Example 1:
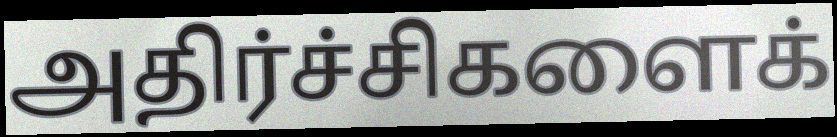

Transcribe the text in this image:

அதிர்ச்சிகளைக்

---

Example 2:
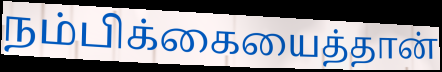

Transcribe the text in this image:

நம்பிக்கையைத்தான்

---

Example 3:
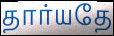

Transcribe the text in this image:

தார்யதே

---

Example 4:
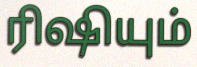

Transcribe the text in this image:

ரிஷியும்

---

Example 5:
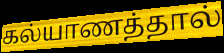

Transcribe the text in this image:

கல்யாணத்தால்